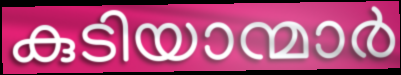
കുടിയാന്മാർ